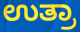
ಉತ್ರಾ